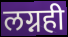
लग्नही